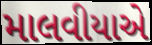
માલવીયાએ